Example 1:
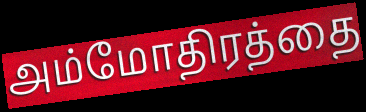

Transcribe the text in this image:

அம்மோதிரத்தை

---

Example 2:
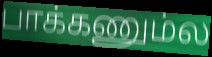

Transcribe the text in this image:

பாக்கணும்ல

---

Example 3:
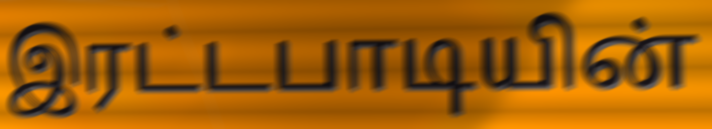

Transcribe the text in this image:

இரட்டபாடியின்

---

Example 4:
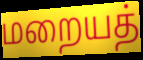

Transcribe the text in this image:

மறையத்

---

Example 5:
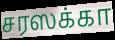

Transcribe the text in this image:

சரஸக்கா